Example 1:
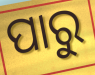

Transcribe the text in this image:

ପାରୁ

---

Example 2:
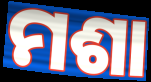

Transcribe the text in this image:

ମଶା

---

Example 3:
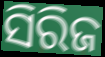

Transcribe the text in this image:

ସିରିଜ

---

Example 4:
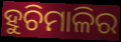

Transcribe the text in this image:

ହୁଚିମାଳିର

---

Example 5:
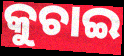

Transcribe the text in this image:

କୁଚାଇ